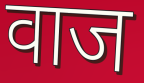
वाज